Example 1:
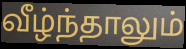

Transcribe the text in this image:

வீழ்ந்தாலும்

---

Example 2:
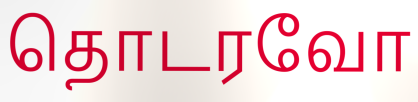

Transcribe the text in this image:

தொடரவோ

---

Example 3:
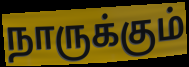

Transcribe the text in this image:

நாருக்கும்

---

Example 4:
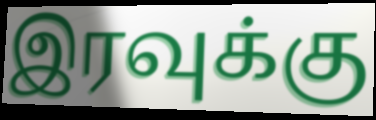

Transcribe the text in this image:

இரவுக்கு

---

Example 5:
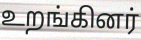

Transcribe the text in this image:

உறங்கினர்